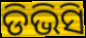
ଡିଭିସି